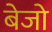
बेजो